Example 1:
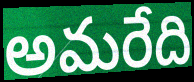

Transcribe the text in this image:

అమరేది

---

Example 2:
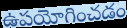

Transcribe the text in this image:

ఉపయోగించడం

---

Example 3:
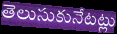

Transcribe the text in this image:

తెలుసుకునేటట్లు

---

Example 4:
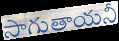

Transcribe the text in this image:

సాగుతాయనీ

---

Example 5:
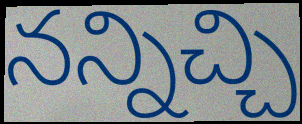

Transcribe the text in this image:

నన్నిచ్చి